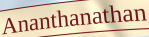
Ananthanathan